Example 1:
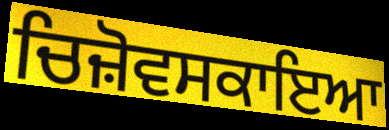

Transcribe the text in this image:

ਚਿਜ਼ੋਵਸਕਾਇਆ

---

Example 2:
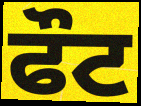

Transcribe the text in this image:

ਫੌਟ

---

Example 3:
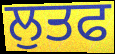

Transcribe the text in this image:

ਲੁਤਫ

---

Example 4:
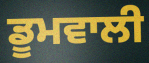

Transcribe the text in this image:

ਡੂਮਵਾਲੀ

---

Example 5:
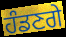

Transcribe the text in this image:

ਹੰਡਣਗੇ